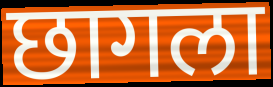
छागला